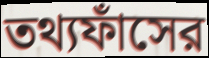
তথ্যফাঁসের